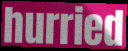
hurried